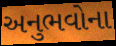
અનુભવોના